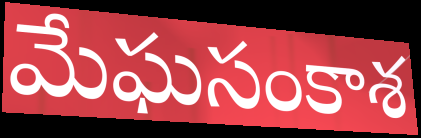
మేఘసంకాశ